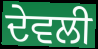
ਦੇਵਲੀ